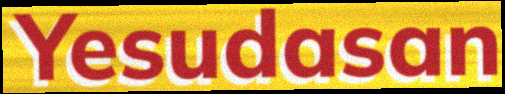
Yesudasan